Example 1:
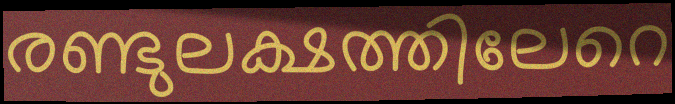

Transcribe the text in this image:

രണ്ടുലക്ഷത്തിലേറെ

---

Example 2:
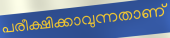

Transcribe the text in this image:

പരീക്ഷിക്കാവുന്നതാണ്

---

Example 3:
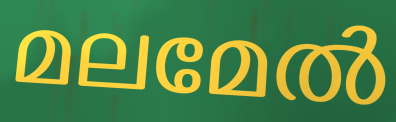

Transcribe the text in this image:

മലമേൽ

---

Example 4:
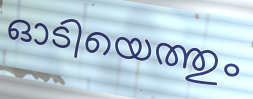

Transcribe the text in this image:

ഓടിയെത്തും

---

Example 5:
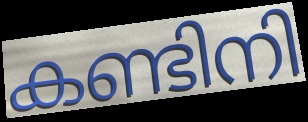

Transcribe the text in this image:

കണ്ടിനി